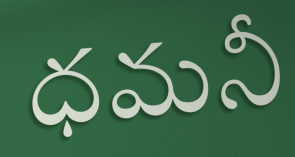
ధమనీ